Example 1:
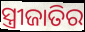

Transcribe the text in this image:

ସ୍ତ୍ରୀଜାତିର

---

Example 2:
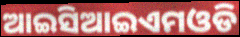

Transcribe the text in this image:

ଆଇସିଆଇଏମଓଡି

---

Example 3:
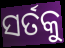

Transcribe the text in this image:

ସର୍ତକୁ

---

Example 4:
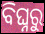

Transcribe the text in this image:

ବିଘ୍ନରୁ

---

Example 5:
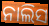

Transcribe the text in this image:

ନାଲିସ